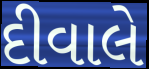
દીવાલે